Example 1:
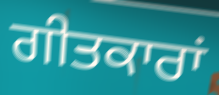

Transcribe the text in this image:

ਗੀਤਕਾਰਾਂ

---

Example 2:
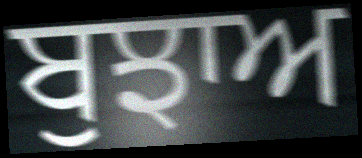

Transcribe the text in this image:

ਬੁਝਾਅ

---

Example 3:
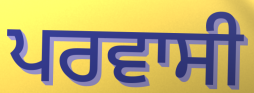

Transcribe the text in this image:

ਪਰਵਾਸੀ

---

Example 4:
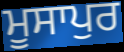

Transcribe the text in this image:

ਮੂਸਾਪੁਰ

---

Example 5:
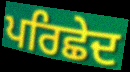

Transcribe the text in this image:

ਪਰਿਛੇਦ